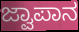
ಜ್ವಾಪಾನ